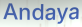
Andaya